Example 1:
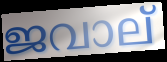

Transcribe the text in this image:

ജവാല്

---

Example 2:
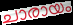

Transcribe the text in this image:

ചാരായം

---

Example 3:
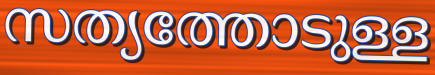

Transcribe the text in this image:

സത്യത്തോടുള്ള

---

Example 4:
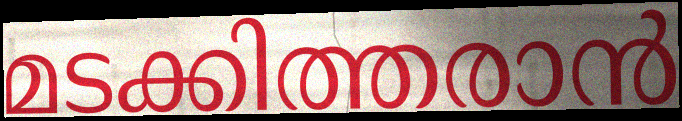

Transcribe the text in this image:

മടക്കിത്തരാൻ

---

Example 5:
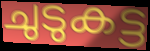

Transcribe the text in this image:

ചുടുകട്ട